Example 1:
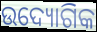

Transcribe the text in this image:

ଉଦ୍ୟୋଗିକ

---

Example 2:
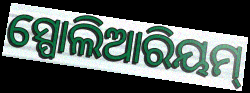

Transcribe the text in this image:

ସ୍ପୋଲିଆରିୟମ୍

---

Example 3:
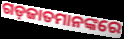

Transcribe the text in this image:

ଗଡ଼ଜାତମାନଙ୍କରେ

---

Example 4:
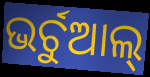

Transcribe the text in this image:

ଭର୍ଚୁଆଲ୍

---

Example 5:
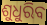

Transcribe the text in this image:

ଶୁଧୁରିବ